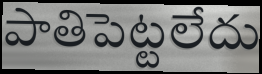
పాతిపెట్టలేదు